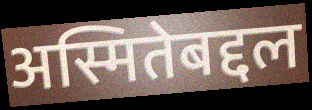
अस्मितेबद्दल